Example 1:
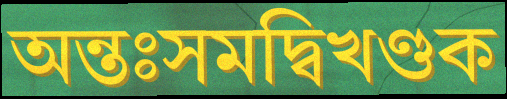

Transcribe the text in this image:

অন্তঃসমদ্বিখণ্ডক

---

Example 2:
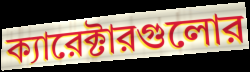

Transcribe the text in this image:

ক্যারেক্টারগুলোর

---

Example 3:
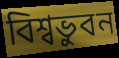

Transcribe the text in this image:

বিশ্বভুবন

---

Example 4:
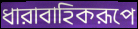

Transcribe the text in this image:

ধারাবাহিকরূপে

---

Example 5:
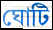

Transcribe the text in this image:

ঘোটি